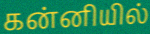
கன்னியில்